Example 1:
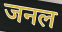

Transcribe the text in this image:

जनल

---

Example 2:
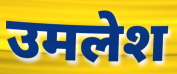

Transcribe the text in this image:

उमलेश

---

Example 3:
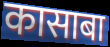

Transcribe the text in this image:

कासाबा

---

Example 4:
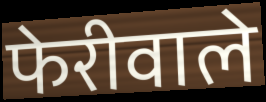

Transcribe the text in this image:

फेरीवाले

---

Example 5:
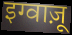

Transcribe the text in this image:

इग्वाज़ू